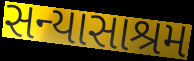
સન્યાસાશ્રમ